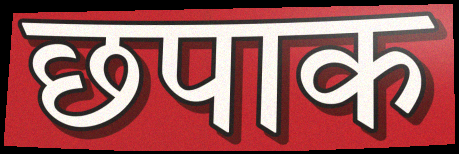
छपाक